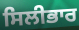
ਸਿਲੀਭਾਰ